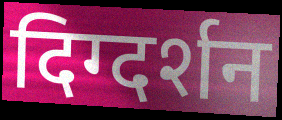
दिग्दर्शन